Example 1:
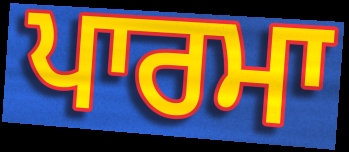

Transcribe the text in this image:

ਪਾਰਮਾ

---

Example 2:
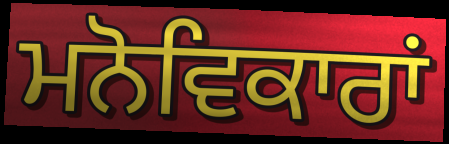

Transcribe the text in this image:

ਮਨੋਵਿਕਾਰਾਂ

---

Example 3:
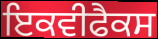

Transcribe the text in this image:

ਇਕਵੀਫੈਕਸ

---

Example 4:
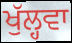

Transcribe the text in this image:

ਖੁੱਲ੍ਹਵਾ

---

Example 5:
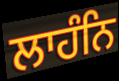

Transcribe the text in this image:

ਲਾਹੰਨਿ